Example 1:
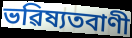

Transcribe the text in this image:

ভৱিষ্যতবাণী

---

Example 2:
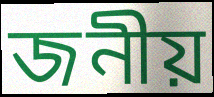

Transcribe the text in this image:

জনীয়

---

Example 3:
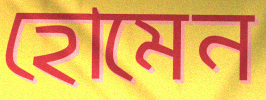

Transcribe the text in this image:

হোমেন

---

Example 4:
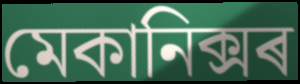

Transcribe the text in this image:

মেকানিক্সৰ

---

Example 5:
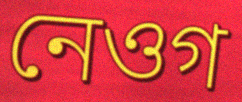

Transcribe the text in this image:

নেওগ